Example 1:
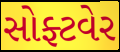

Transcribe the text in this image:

સોફ્ટવેર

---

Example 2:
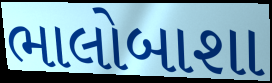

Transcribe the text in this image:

ભાલોબાશા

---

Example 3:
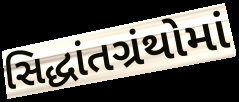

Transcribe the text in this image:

સિદ્ધાંતગ્રંથોમાં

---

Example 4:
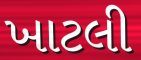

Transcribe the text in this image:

ખાટલી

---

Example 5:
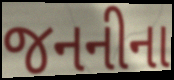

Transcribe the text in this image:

જનનીના